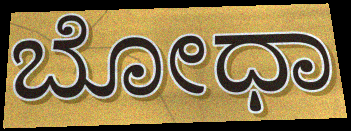
ಬೋಧಾ